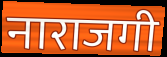
नाराजगी